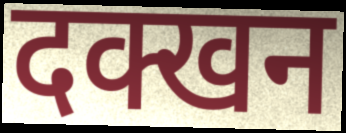
दक्खन